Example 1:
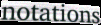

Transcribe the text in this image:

notations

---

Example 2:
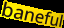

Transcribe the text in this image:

baneful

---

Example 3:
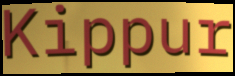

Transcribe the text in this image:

Kippur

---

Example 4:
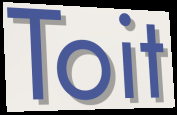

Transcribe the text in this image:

Toit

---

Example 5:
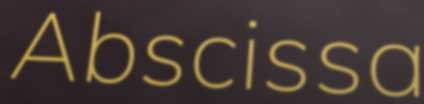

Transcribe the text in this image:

Abscissa